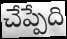
చేప్పేది